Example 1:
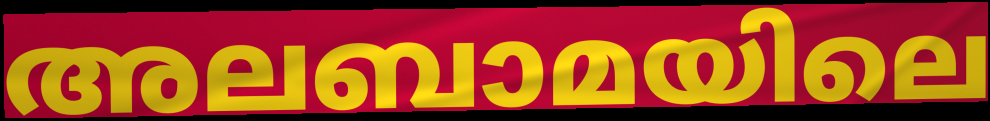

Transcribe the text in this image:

അലബാമയിലെ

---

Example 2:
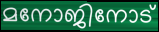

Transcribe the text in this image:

മനോജിനോട്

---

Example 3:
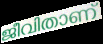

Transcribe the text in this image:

ജീവിതാണ്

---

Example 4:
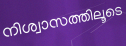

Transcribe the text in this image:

നിശ്വാസത്തിലൂടെ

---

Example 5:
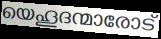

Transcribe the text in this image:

യെഹൂദന്മാരോട്